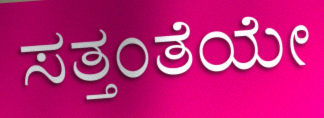
ಸತ್ತಂತೆಯೇ